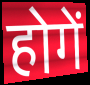
होगें